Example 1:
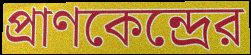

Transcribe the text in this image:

প্রাণকেন্দ্রের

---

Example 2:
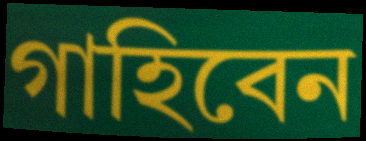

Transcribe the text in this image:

গাহিবেন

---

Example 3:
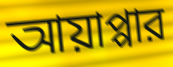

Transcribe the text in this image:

আয়াপ্পার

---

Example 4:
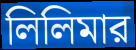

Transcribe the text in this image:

লিলিমার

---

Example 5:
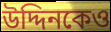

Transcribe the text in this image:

উদ্দিনকেও